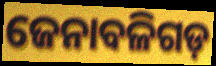
ଜେନାବଳିଗଡ଼